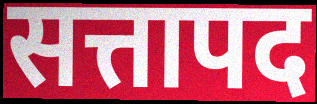
सत्तापद